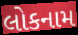
લોકનામ